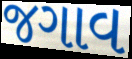
જગાવ